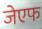
जेएफ